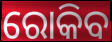
ରୋକିବ